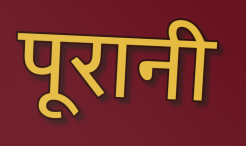
पूरानी